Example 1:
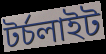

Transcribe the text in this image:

টর্চলাইট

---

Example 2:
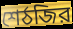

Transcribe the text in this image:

শেঠজির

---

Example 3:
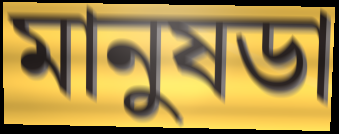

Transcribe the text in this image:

মানুষডা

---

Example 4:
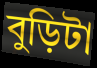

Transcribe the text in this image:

বুড়িটা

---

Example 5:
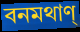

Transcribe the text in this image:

বনমথাণ্